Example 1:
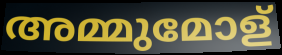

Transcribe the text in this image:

അമ്മുമോള്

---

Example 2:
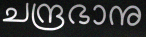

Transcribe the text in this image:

ചന്ദ്രഭാനു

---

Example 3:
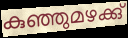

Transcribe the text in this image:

കുഞ്ഞുമഴക്കു്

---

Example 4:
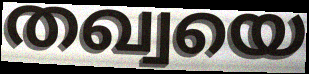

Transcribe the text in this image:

തഖ്വയെ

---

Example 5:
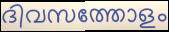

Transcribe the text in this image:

ദിവസത്തോളം